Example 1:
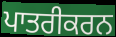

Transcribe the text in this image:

ਪਾਤਰੀਕਰਨ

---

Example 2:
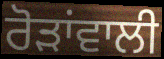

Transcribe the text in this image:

ਰੋੜਾਂਵਾਲੀ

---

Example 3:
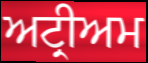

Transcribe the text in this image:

ਅਟ੍ਰੀਅਮ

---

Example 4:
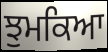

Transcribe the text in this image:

ਝੁਮਕਿਆ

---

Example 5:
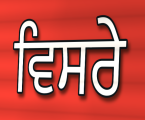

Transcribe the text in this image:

ਵਿਸਰੇ